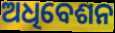
ଅଧିବେଶନ